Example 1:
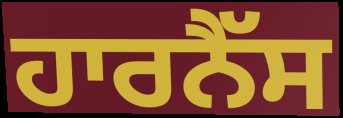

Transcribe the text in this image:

ਹਾਰਨੈੱਸ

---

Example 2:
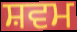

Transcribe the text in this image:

ਸ਼ਵਮ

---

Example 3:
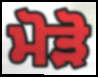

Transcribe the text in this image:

ਮੋੜੋ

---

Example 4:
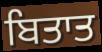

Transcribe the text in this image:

ਬਿਤਾਤ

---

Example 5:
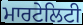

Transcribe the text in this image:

ਮਾਰਟੇਲਿਟੀ